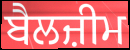
ਬੈਲਜ਼ੀਮ